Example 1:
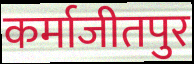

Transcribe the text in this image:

कर्माजीतपुर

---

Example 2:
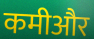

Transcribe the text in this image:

कमीऔर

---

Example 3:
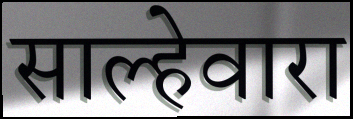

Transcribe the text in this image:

साल्हेवारा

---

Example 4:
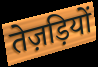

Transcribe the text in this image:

तेज़ड़ियों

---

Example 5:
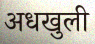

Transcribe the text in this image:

अधखुली